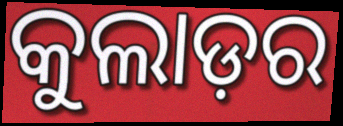
କୁଲାଡ଼ର